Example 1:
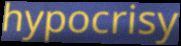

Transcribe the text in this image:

hypocrisy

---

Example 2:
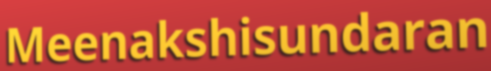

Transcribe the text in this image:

Meenakshisundaran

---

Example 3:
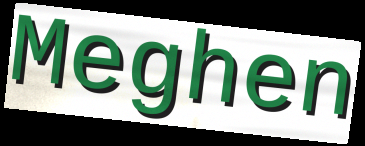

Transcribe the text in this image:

Meghen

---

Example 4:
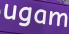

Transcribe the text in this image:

ugam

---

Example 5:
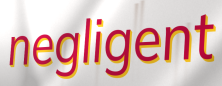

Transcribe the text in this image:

negligent